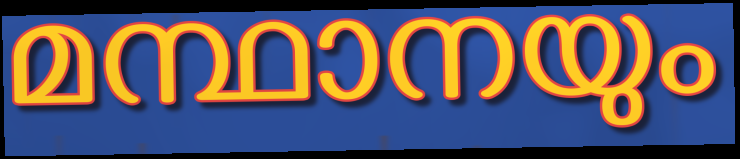
മന്ഥാനയും